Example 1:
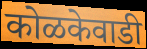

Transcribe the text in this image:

कोळकेवाडी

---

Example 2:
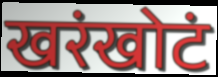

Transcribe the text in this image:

खरंखोटं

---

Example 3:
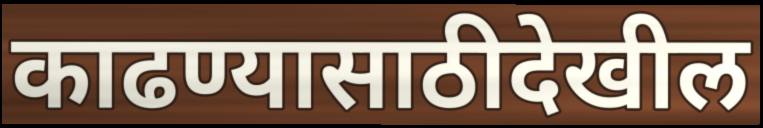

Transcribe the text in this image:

काढण्यासाठीदेखील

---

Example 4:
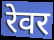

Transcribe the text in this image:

रेवर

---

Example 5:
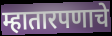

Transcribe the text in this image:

म्हातारपणाचे